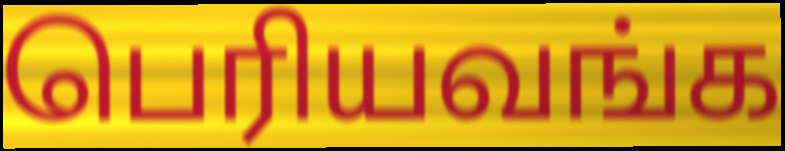
பெரியவங்க